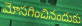
మోసగించినందుకు